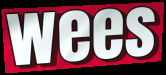
wees